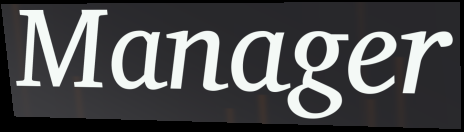
Manager